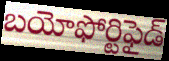
బయోఫోర్టిఫైడ్